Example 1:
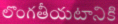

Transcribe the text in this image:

లొంగతీయటానికి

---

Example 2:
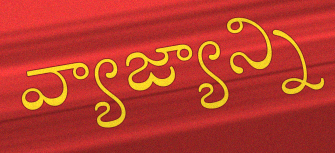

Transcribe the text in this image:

వ్యాజ్యాన్ని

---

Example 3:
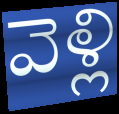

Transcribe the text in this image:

వెళ్లి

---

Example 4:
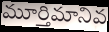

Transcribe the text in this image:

మూర్తిమానివ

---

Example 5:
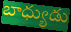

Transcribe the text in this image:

బాధ్యుడు